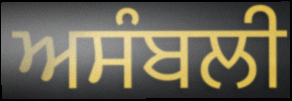
ਅਸੰਬਲੀ